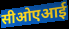
सीओएआई